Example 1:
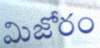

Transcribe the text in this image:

మిజోరం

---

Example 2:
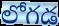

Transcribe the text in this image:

లోగడ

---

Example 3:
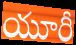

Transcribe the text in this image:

యూరీ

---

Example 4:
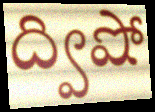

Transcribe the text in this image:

ద్విషో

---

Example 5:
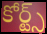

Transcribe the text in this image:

కోర్ట్స్